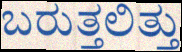
ಬರುತ್ತಲಿತ್ತು